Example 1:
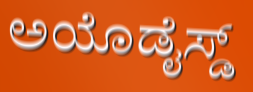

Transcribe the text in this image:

ಅಯೊಡೈಸ್ಡ್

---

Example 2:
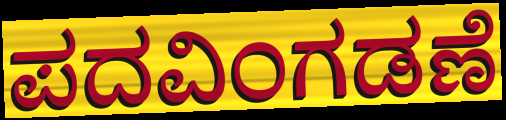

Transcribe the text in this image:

ಪದವಿಂಗಡಣೆ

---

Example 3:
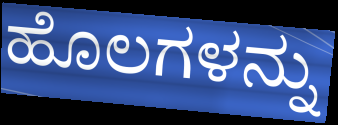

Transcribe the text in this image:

ಹೊಲಗಳನ್ನು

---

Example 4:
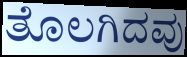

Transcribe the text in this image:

ತೊಲಗಿದವು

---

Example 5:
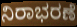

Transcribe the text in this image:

ನಿರಾಭರಣೆ